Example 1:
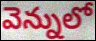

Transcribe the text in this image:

వెన్నులో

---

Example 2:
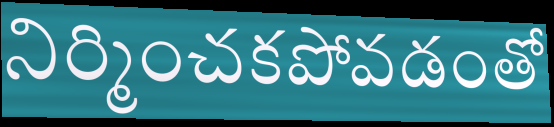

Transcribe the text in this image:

నిర్మించకపోవడంతో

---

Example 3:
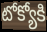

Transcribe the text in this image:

టోక్యోకి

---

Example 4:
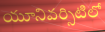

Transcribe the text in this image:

యూనివర్సిటిలో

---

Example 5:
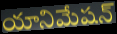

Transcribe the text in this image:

యానిమేషన్